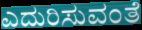
ಎದುರಿಸುವಂತೆ